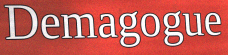
Demagogue